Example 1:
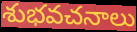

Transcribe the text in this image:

శుభవచనాలు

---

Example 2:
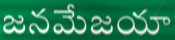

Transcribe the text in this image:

జనమేజయా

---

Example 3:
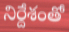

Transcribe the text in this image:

నిర్దేశంతో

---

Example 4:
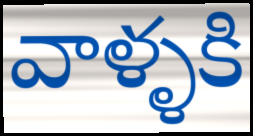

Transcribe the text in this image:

వాళ్ళకి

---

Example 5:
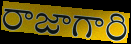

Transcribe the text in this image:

రాజాగారి